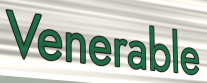
Venerable